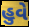
હુવે